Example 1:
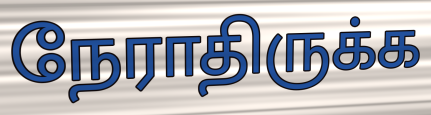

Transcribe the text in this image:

நேராதிருக்க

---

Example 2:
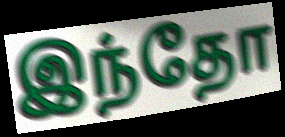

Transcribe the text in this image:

இந்தோ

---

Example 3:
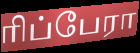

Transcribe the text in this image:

ரிப்பேரா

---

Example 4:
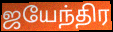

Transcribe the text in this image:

ஜயேந்திர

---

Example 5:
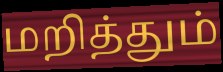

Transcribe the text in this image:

மறித்தும்